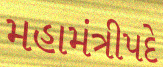
મહામંત્રીપદે